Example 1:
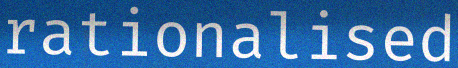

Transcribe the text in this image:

rationalised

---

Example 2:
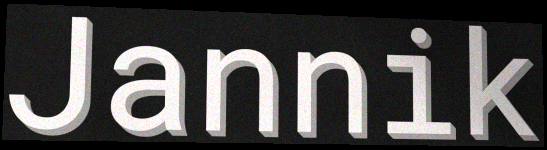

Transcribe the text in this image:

Jannik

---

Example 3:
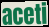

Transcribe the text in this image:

aceti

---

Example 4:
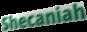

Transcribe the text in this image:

Shecaniah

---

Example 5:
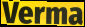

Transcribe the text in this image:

Verma